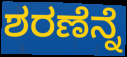
ಶರಣೆನ್ನೆ